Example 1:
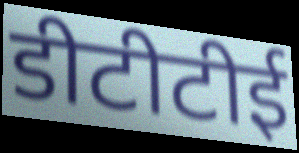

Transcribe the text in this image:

डीटीटीई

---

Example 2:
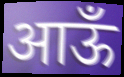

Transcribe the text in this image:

आऊँ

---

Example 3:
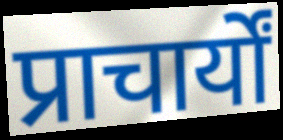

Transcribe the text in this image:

प्राचार्यों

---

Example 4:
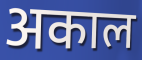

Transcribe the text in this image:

अकाल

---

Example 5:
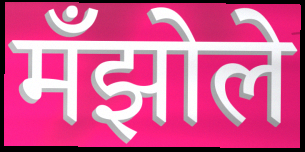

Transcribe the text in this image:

मँझोले